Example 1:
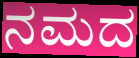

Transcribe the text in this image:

ನಮದ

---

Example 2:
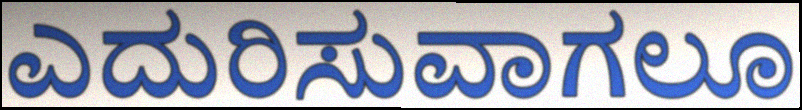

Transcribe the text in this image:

ಎದುರಿಸುವಾಗಲೂ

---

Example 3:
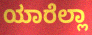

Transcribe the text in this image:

ಯಾರೆಲ್ಲಾ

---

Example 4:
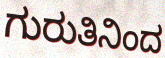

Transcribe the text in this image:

ಗುರುತಿನಿಂದ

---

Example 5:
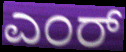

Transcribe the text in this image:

ಎಂರ್